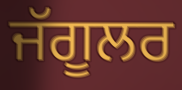
ਜੱਗੂਲਰ